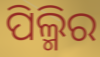
ପିଲ୍ମିର